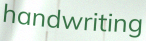
handwriting